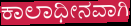
ಕಾಲಾಧೀನವಾಗಿ